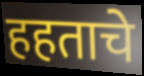
हहताचे